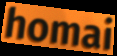
homai